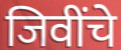
जिवींचे